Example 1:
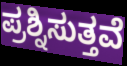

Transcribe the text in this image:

ಪ್ರಶ್ನಿಸುತ್ತವೆ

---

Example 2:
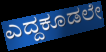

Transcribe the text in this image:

ಎದ್ದಕೂಡಲೇ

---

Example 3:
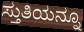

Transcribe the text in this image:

ಸ್ತುತಿಯನ್ನೂ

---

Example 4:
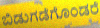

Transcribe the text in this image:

ಬಿಡುಗಡೆಗೊಂಡರೆ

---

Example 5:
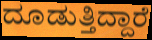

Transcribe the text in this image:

ದೂಡುತ್ತಿದ್ದಾರೆ